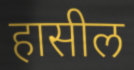
हासील